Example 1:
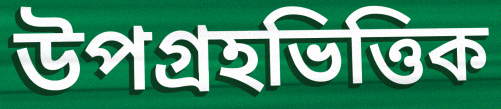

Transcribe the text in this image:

উপগ্রহভিত্তিক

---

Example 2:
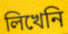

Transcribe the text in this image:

লিখেনি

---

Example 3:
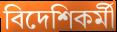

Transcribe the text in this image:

বিদেশিকর্মী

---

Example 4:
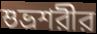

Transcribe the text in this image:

শুভ্রশরীর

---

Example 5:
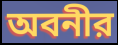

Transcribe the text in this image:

অবনীর